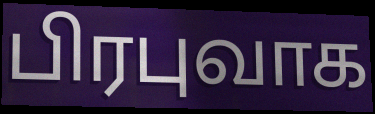
பிரபுவாக